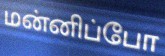
மன்னிப்போ